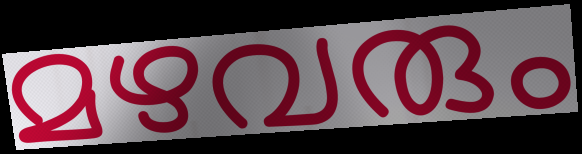
മഴവരും